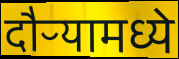
दौऱ्यामध्ये